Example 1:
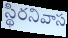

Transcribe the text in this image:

స్థిరనివాస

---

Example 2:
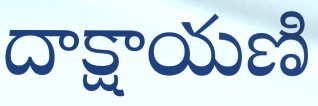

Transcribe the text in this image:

దాక్షాయణి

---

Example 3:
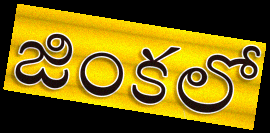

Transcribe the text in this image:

జింకలో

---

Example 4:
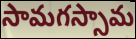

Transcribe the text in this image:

సామగస్సామ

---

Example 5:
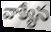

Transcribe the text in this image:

వాక్యేన